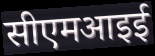
सीएमआइई